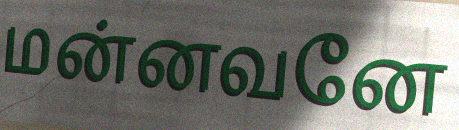
மன்னவனே